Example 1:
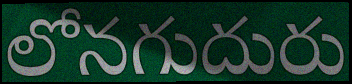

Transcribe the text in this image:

లోనగుదురు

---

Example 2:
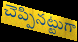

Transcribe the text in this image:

చెప్పినట్టుగా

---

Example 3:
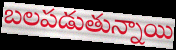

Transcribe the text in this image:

బలపడుతున్నాయి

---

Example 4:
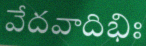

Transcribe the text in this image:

వేదవాదిభిః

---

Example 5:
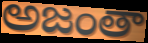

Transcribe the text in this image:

అజంతా